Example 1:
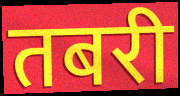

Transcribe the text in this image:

तबरी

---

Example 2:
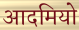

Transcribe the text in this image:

आदमियो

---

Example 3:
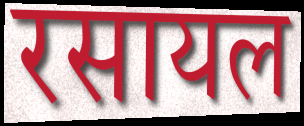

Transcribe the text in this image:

रसायल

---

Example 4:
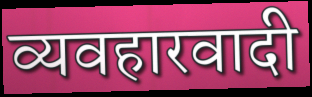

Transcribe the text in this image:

व्यवहारवादी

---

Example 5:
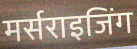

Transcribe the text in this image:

मर्सराइजिंग